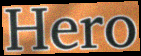
Hero